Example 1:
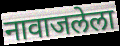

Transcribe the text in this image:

नावाजलेला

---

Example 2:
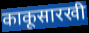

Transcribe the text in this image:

काकूसारखी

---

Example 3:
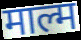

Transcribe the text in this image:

माल्म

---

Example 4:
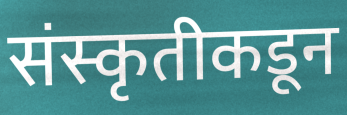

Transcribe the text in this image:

संस्कृतीकडून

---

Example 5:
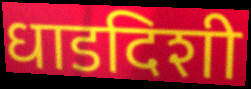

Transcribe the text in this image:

धाडदिशी